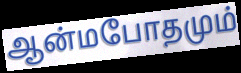
ஆன்மபோதமும்